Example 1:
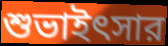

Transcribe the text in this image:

শুভাইৎসার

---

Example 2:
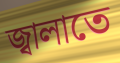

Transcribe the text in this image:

জ্বালাতে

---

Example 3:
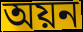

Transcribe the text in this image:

অয়ন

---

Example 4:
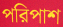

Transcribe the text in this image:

পরিপাশ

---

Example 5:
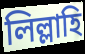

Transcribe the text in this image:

লিল্লাহি